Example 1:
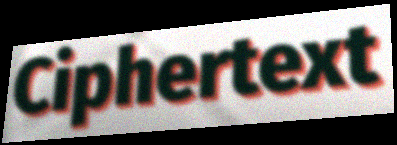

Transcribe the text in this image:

Ciphertext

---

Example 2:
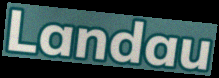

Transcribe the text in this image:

Landau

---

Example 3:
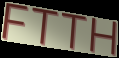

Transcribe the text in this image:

FTTH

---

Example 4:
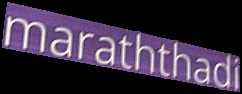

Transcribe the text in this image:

maraththadi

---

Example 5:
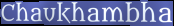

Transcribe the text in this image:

Chaukhambha